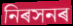
নিৰসনৰ